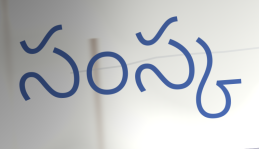
సంస్క